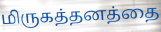
மிருகத்தனத்தை